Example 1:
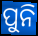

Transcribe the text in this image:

ପୁନି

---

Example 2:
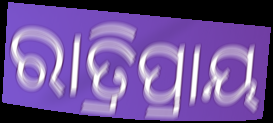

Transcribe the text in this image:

ରାତ୍ରିପ୍ରାୟ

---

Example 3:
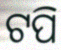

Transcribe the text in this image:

ଟପି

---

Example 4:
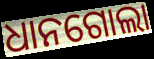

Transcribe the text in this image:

ଧାନଗୋଲା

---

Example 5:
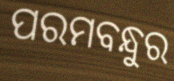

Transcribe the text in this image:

ପରମବନ୍ଧୁର